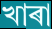
খাৰা